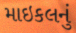
માઇકલનું